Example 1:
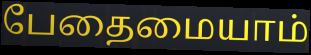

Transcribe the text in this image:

பேதைமையாம்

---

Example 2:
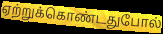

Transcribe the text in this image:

ஏற்றுக்கொண்டதுபோல்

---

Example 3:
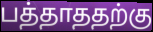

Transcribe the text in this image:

பத்தாததற்கு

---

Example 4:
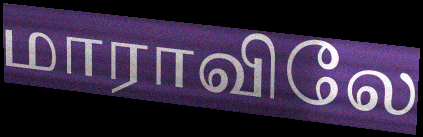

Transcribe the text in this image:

மாராவிலே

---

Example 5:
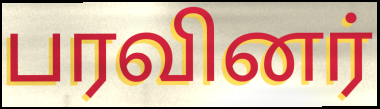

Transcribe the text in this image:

பரவினர்